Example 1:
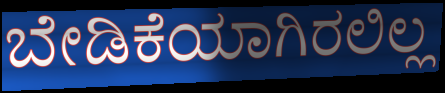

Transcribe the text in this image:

ಬೇಡಿಕೆಯಾಗಿರಲಿಲ್ಲ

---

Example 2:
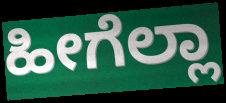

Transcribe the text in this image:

ಹೀಗೆಲ್ಲಾ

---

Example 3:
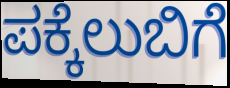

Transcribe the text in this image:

ಪಕ್ಕೆಲುಬಿಗೆ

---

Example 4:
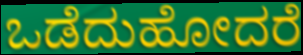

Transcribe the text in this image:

ಒಡೆದುಹೋದರೆ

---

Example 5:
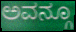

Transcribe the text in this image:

ಅವನ್ಗೂ